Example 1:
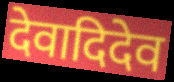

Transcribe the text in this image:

देवादिदेव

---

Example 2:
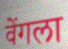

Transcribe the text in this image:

वेंगला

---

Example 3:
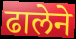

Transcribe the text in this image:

ढालेने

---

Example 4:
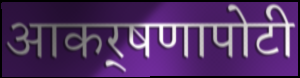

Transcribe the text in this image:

आकर्षणापोटी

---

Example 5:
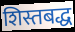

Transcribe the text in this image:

शिस्तबद्ध